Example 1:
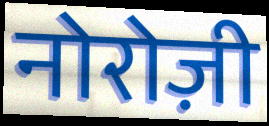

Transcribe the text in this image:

नोरोज़ी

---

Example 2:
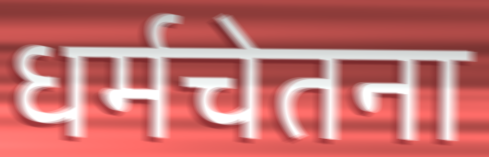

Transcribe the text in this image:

धर्मचेतना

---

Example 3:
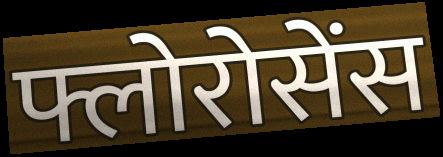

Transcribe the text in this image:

फ्लोरोसेंस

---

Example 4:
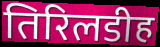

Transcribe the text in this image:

तिरिलडीह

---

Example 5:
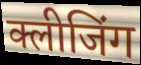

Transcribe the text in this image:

क्‍लीजिंग